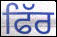
ਫਿੱਰ